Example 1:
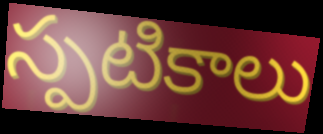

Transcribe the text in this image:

స్పటికాలు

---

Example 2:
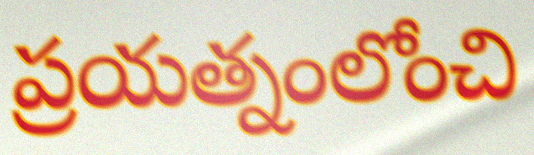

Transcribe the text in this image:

ప్రయత్నంలోంచి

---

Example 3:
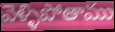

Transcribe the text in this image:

వెళ్ళిపోతాము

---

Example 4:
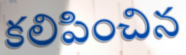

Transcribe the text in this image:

కలిపించిన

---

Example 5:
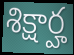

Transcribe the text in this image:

శిక్షార్హ